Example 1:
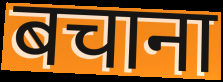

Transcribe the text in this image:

बचाना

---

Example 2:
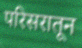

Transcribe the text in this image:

परिसरातून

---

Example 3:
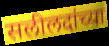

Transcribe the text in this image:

सलीलदांच्या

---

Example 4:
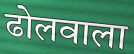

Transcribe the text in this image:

ढोलवाला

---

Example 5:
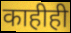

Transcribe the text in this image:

काहीही